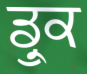
ਡ੍ਰੁਕ